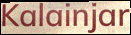
Kalainjar